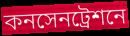
কনসেনট্রেশনে